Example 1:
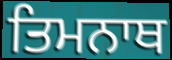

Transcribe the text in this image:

ਤਿਮਨਾਥ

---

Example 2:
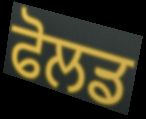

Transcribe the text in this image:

ਫੋਲਡ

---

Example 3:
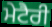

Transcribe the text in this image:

ਮੇਟੈਰੀ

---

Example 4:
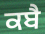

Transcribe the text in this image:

ਕਬੈ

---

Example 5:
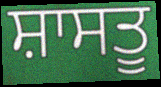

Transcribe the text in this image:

ਸ਼ਾਸਤੂ